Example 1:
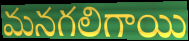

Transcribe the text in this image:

మనగలిగాయి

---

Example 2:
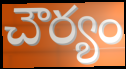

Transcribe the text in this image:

చౌర్యం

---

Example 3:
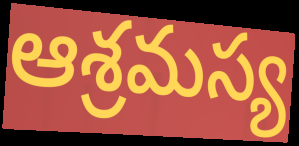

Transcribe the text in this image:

ఆశ్రమస్య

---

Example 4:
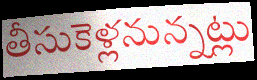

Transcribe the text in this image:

తీసుకెళ్లనున్నట్లు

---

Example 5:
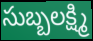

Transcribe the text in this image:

సుబ్బలక్ష్మి